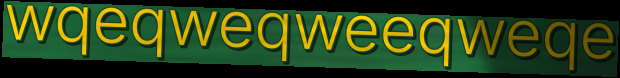
wqeqweqweeqweqe